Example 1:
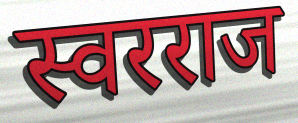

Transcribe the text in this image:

स्वरराज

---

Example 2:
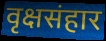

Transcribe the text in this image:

वृक्षसंहार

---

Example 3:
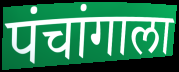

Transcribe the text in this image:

पंचांगाला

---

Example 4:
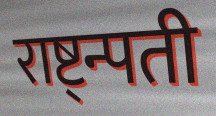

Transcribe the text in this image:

राष्ट्न्पती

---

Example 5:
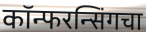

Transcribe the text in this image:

कॉन्फरन्सिंगचा